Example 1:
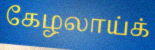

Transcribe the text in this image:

கேழலாய்க்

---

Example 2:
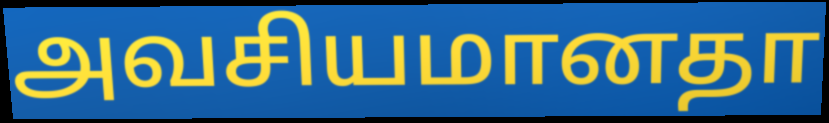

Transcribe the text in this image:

அவசியமானதா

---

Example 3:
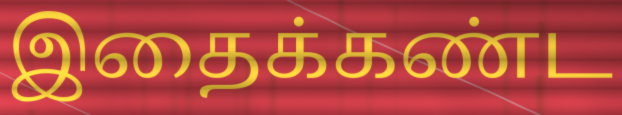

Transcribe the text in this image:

இதைக்கண்ட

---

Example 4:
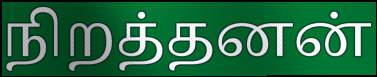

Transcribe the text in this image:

நிறத்தனன்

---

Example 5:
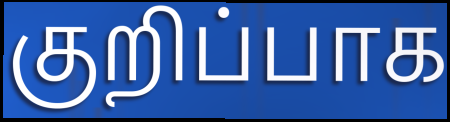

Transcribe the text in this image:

குறிப்பாக